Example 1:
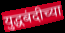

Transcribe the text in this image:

युद्धबंदीच्या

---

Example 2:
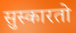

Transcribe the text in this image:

सुस्कारतो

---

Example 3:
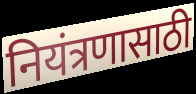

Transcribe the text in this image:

नियंत्रणासाठी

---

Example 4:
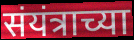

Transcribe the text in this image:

संयंत्राच्या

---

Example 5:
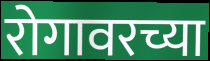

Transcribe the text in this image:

रोगावरच्या